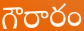
గౌరారం